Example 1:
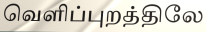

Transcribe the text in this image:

வெளிப்புறத்திலே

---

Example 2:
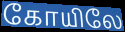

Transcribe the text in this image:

கோயிலே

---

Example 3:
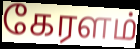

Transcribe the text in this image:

கேரளம்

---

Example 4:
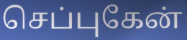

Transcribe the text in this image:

செப்புகேன்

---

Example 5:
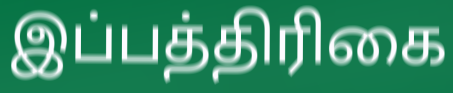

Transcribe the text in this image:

இப்பத்திரிகை